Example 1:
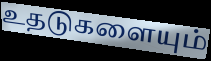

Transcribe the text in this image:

உதடுகளையும்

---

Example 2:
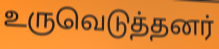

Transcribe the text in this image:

உருவெடுத்தனர்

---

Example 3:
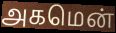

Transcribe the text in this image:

அகமென்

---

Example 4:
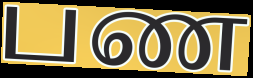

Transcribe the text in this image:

பண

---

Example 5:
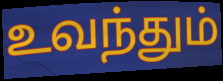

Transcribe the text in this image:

உவந்தும்